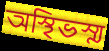
অস্থিভস্ম